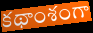
కథాంశంగా